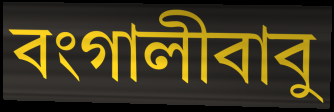
বংগালীবাবু